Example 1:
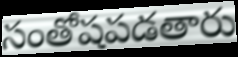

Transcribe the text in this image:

సంతోషపడతారు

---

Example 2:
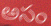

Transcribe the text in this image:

అసం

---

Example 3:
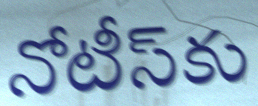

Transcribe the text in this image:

నోటీస్‌కు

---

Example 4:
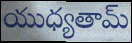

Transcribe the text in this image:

యుధ్యతామ్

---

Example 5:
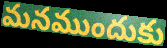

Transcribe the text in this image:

మనముందుకు